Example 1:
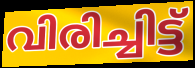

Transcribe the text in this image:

വിരിച്ചിട്ട്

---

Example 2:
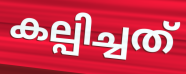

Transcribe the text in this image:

കല്പിച്ചത്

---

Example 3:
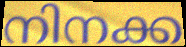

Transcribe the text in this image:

നിനക്ക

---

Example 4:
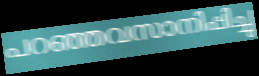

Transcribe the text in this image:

പറഞ്ഞവസാനിപ്പിച്ചു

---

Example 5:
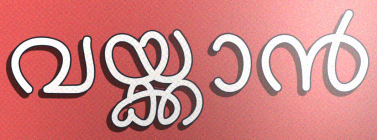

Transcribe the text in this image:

വയ്ക്കാൻ